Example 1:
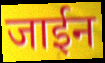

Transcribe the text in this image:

जाईन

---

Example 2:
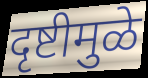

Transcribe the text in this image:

दृष्टीमुळे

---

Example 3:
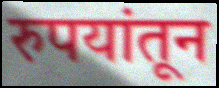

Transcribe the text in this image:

रुपयांतून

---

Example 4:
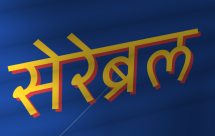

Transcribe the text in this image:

सेरेब्रल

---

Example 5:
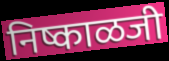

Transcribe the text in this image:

निष्काळजी